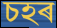
চহৰ